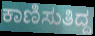
ಕಾಣಿಸುತಿದ್ದ